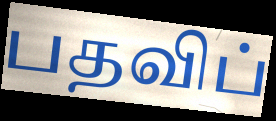
பதவிப்